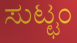
ಸುಟ್ಟಂ